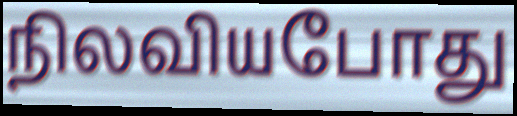
நிலவியபோது